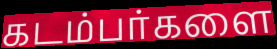
கடம்பர்களை